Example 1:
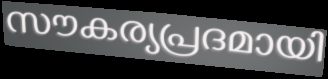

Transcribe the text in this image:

സൗകര്യപ്രദമായി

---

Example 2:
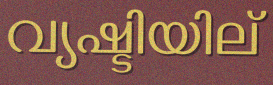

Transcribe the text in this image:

വ്യഷ്ടിയില്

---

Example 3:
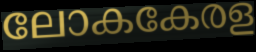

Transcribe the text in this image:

ലോകകേരള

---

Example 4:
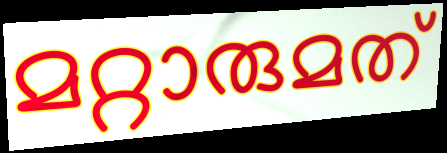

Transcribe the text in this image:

മറ്റാരുമത്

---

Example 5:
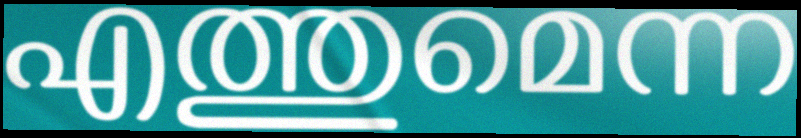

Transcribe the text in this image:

എത്തുമെന്ന